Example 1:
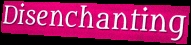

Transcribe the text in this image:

Disenchanting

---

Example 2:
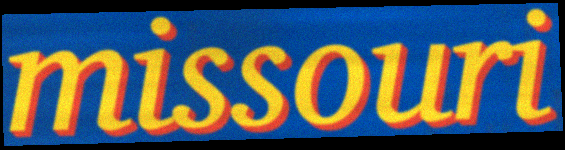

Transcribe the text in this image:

missouri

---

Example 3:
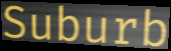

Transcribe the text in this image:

Suburb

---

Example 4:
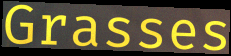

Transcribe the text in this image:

Grasses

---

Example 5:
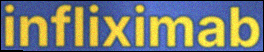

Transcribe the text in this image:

infliximab